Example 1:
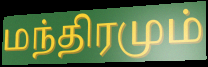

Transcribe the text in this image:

மந்திரமும்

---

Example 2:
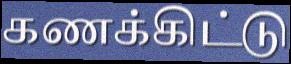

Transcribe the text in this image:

கணக்கிட்டு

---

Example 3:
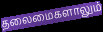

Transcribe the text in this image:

தலைமைகளாலும்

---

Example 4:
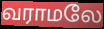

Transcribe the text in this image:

வராமலே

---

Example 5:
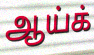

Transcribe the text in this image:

ஆய்க்